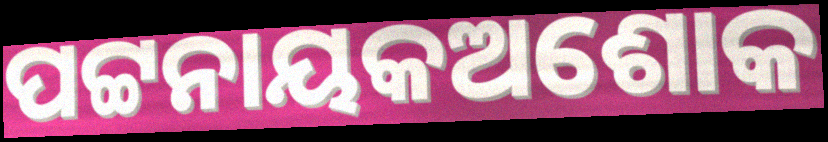
ପଟ୍ଟନାୟକଅଶୋକ